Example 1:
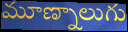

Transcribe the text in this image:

మూణ్నాలుగు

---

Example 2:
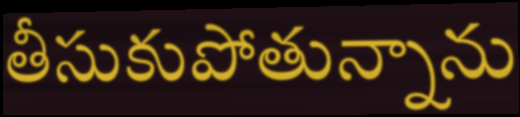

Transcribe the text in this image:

తీసుకుపోతున్నాను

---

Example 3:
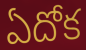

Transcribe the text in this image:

ఏదోక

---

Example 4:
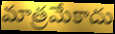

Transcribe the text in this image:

మాత్రమేకాదు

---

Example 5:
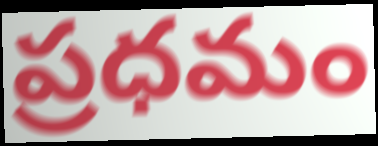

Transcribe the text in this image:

ప్రధమం